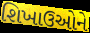
શિખાઉઓને